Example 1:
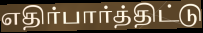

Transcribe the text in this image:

எதிர்பார்த்திட்டு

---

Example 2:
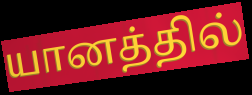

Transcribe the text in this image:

யானத்தில்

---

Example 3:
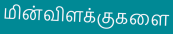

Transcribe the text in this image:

மின்விளக்குகளை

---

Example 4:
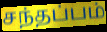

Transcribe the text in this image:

சந்தப்பம்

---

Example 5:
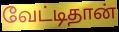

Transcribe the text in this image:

வேட்டிதான்